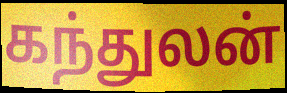
கந்துலன்